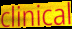
clinical